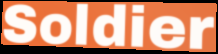
Soldier